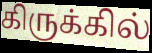
கிருக்கில்